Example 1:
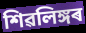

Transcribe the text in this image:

শিৱলিঙ্গৰ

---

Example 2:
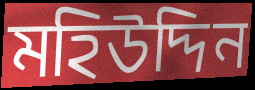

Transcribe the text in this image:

মহিউদ্দিন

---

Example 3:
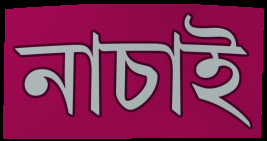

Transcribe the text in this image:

নাচাই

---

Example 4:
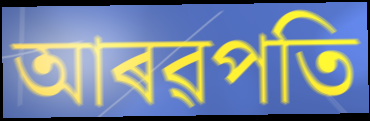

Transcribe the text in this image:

আৰৱপতি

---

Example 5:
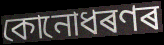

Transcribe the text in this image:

কোনোধৰণৰ